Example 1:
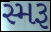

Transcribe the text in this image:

સ્મરૂ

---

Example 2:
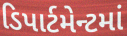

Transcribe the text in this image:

ડિપાર્ટમેન્ટમાં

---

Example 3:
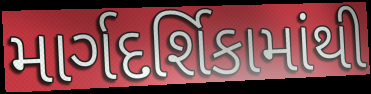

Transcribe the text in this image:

માર્ગદર્શિકામાંથી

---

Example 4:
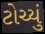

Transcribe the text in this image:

ટોચ્યું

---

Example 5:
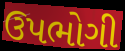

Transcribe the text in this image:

ઉપભોગી